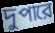
দুপারে